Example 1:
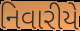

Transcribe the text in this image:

નિવારીયે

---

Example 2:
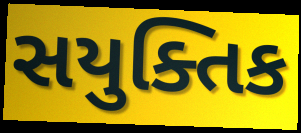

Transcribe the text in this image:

સયુક્તિક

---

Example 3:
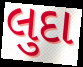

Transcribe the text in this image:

લુદા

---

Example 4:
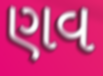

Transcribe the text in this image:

ણવ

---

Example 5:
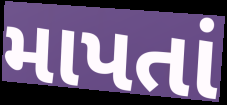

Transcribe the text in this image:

માપતાં